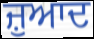
ਜ਼ੁਆਦ